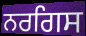
ਨਰਗਿਸ